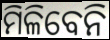
ମିଳିବେନି